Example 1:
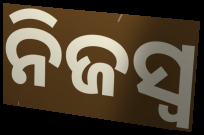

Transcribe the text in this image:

ନିଜସ୍ୱ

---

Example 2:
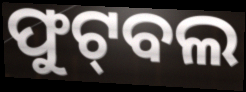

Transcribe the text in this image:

ଫୁଟ୍‌ବଲ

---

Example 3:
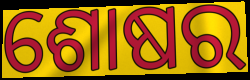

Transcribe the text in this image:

ଶୋଷର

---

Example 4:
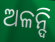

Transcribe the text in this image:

ଅଳନ୍ଦି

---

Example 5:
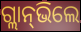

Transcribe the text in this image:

ଗ୍ଲାନ୍‌ଭିଲେ